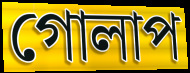
গোলাপ